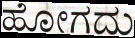
ಹೋಗದು